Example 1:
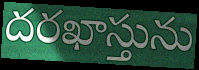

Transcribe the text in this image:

దరఖాస్తును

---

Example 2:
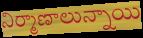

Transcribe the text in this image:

నిర్మాణాలున్నాయి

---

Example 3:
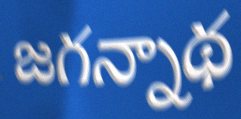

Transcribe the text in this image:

జగన్నాథ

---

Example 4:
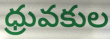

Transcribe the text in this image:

ధ్రువకుల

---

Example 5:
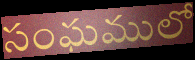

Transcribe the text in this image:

సంఘములో